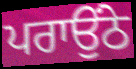
ਪਰਾਉਂਠੇ